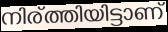
നിര്ത്തിയിട്ടാണ്